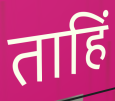
ताहिं